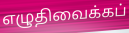
எழுதிவைக்கப்